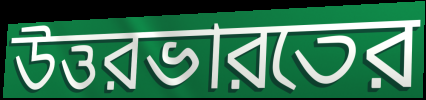
উত্তরভারতের